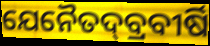
ଯେନୈତଦ୍‌ବ୍ରବୀର୍ଷି